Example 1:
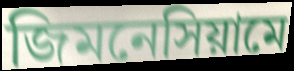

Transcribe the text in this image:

জিমনেসিয়ামে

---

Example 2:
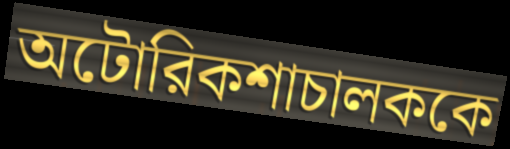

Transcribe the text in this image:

অটোরিকশাচালককে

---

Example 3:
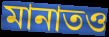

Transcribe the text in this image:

মানাতও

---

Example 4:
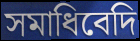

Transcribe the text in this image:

সমাধিবেদি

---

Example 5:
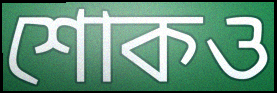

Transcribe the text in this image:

শোকও